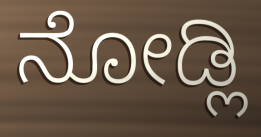
ನೋಡ್ಲಿ